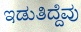
ಇಡುತಿದ್ದೆವು